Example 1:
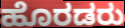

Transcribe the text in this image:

ಹೊರಡರು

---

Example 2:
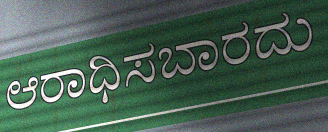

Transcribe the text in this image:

ಆರಾಧಿಸಬಾರದು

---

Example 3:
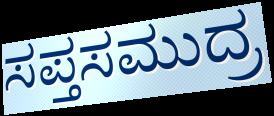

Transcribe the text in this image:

ಸಪ್ತಸಮುದ್ರ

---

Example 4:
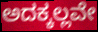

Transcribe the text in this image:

ಅದಕ್ಕಲ್ಲವೇ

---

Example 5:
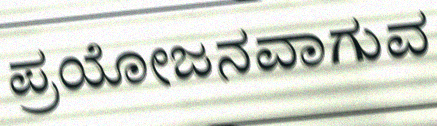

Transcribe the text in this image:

ಪ್ರಯೋಜನವಾಗುವ